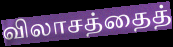
விலாசத்தைத்